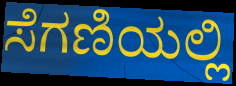
ಸೆಗಣಿಯಲ್ಲಿ